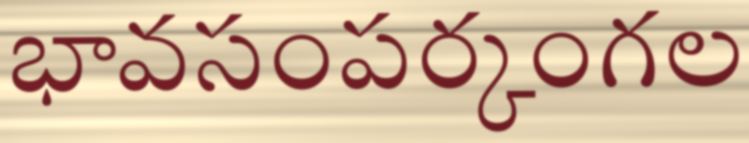
భావసంపర్కంగల